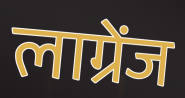
लाग्रेंज